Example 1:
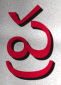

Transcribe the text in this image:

ప్ర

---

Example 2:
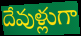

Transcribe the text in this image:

దేవుళ్లుగా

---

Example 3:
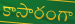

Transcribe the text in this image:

కాసారంగా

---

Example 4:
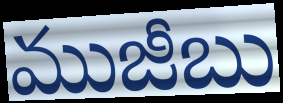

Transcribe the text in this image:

ముజీబు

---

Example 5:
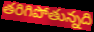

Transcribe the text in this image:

తరిగిపోతున్నది